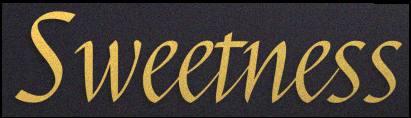
Sweetness